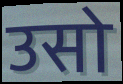
उसो